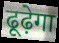
ढूढ़ेगा